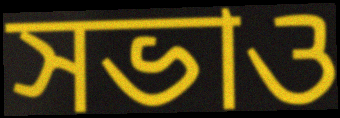
সভাও